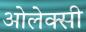
ओलेक्सी